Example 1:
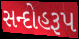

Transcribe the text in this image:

સન્દોહરૂપ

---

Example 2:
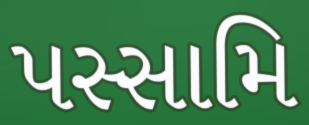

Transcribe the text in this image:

પસ્સામિ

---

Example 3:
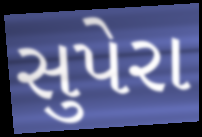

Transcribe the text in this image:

સુપેરા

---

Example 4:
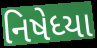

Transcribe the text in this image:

નિષેધ્યા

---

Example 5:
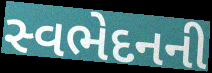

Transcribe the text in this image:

સ્વભેદનની